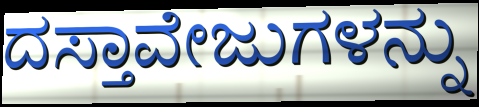
ದಸ್ತಾವೇಜುಗಳನ್ನು